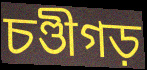
চণ্ডীগড়